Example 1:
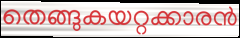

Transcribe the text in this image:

തെങ്ങുകയറ്റക്കാരൻ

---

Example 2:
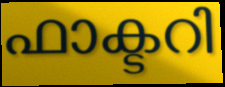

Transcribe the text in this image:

ഫാക്ടറി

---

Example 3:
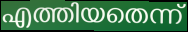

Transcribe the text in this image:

എത്തിയതെന്ന്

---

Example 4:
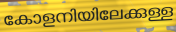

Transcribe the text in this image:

കോളനിയിലേക്കുള്ള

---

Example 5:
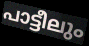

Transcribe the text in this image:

പാട്ടീലും